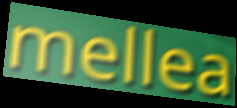
mellea